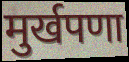
मुर्खपणा